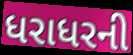
ધરાધરની